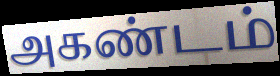
அகண்டம்